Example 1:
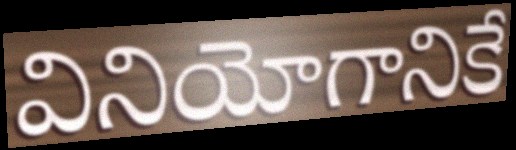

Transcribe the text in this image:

వినియోగానికే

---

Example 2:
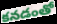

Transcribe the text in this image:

కనడంతో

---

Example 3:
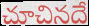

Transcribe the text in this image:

చూచినదే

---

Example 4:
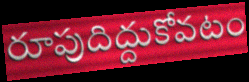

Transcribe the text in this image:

రూపుదిద్దుకోవటం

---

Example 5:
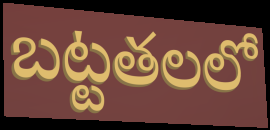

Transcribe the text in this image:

బట్టతలలో